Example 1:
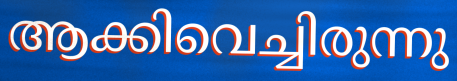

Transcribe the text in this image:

ആക്കിവെച്ചിരുന്നു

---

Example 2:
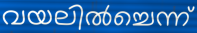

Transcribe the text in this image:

വയലിൽച്ചെന്ന്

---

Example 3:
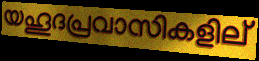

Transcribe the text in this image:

യഹൂദപ്രവാസികളില്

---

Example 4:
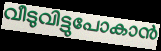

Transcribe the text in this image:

വീടുവിട്ടുപോകാൻ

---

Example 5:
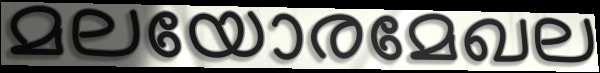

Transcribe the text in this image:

മലയോരമേഖല